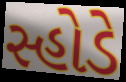
સ્હોડે